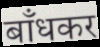
बाँधकर